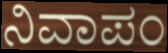
ನಿವಾಪಂ